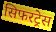
सिफरट्रेस